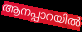
ആനപ്പാറയിൽ